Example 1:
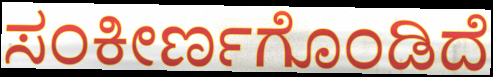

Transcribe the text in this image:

ಸಂಕೀರ್ಣಗೊಂಡಿದೆ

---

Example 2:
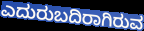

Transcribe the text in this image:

ಎದುರುಬದಿರಾಗಿರುವ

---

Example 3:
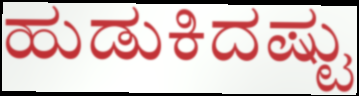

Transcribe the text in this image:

ಹುಡುಕಿದಷ್ಟು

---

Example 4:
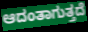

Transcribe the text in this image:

ಆದಂತಾಗುತ್ತದೆ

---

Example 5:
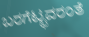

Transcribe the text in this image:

ಬರಗೆಟ್ಟವರಂತೆ